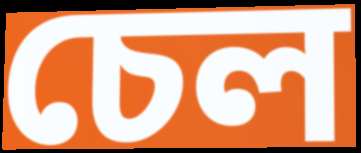
চেল